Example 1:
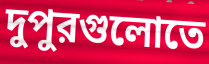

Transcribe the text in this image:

দুপুরগুলোতে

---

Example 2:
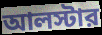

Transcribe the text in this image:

আলস্টার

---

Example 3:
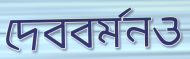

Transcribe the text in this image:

দেববর্মনও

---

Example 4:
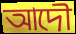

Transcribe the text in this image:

আদৌ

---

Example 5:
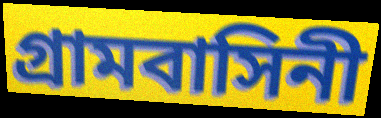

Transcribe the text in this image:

গ্রামবাসিনী